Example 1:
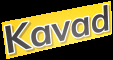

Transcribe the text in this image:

Kavad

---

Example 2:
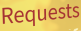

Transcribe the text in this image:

Requests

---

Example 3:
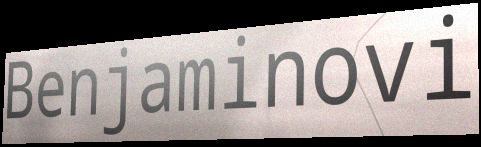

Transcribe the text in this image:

Benjaminovi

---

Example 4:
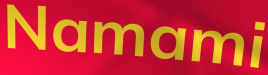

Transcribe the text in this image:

Namami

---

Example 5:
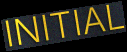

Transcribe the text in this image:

INITIAL